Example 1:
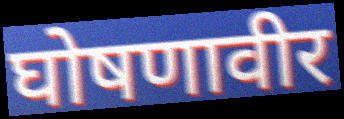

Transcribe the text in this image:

घोषणावीर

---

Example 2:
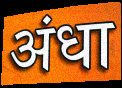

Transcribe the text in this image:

अंधा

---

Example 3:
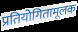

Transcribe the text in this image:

प्रतियोगितामूलक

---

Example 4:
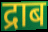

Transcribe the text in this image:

द्राब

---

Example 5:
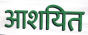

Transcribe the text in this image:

आशयित